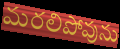
మరలిపోవును